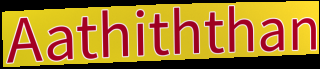
Aathiththan